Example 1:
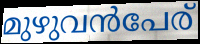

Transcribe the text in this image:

മുഴുവൻപേര്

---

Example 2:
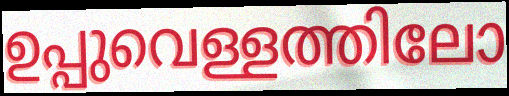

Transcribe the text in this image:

ഉപ്പുവെള്ളത്തിലോ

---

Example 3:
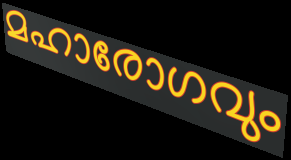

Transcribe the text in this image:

മഹാരോഗവും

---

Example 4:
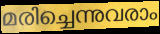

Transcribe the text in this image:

മരിച്ചെന്നുവരാം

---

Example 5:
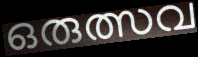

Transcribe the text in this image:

ഒരുത്സവ